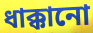
ধাক্কানো